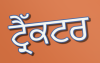
ਟ੍ਰੈੱਕਟਰ